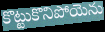
కొట్టుకొనిపోయెను